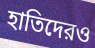
হাতিদেরও